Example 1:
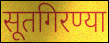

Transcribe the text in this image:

सूतगिरण्या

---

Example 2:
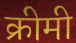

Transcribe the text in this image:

क्रीमी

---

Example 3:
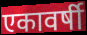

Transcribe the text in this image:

एकावर्षी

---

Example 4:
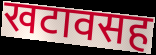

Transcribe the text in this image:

खटावसह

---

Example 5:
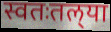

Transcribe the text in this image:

स्वतःतल्या